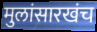
मुलांसारखंच